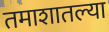
तमाशातल्या